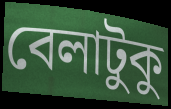
বেলাটুকু